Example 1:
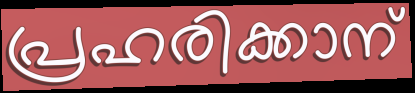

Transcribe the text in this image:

പ്രഹരിക്കാന്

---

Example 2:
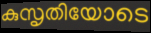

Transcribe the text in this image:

കുസൃതിയോടെ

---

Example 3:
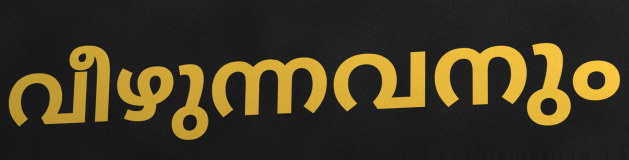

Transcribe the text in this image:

വീഴുന്നവനും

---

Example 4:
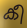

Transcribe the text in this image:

കീ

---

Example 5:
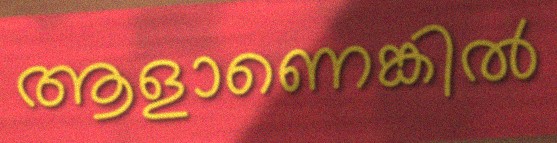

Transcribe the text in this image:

ആളാണെങ്കിൽ